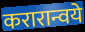
करारान्वये